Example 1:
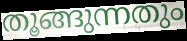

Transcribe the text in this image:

തൂങ്ങുന്നതും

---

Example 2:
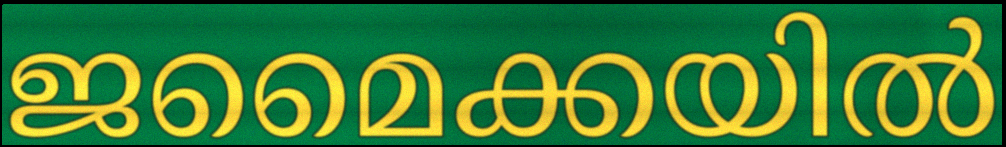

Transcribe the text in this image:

ജമൈക്കയിൽ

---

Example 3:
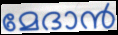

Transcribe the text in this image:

മേദാൻ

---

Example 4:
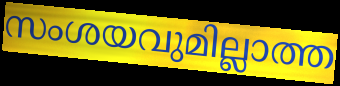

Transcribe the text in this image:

സംശയവുമില്ലാത്ത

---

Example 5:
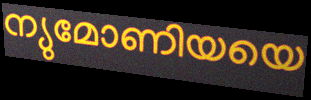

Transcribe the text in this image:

ന്യുമോണിയയെ